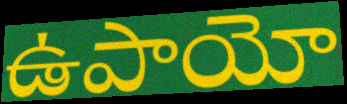
ఉపాయో